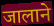
जालाने